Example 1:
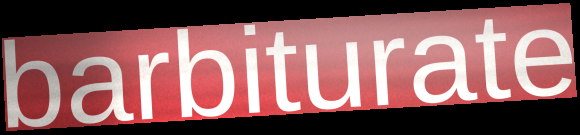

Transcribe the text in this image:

barbiturate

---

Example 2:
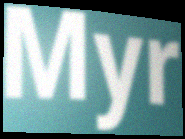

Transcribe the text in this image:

Myr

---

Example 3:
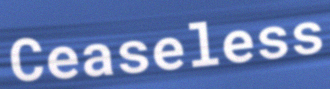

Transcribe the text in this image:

Ceaseless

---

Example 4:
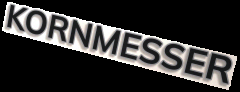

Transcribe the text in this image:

KORNMESSER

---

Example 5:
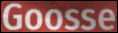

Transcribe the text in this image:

Goosse